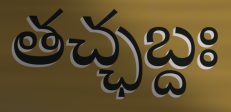
తచ్ఛబ్దః